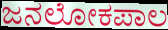
ಜನಲೋಕಪಾಲ